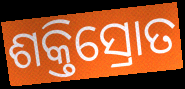
ଶକ୍ତିସ୍ରୋତ